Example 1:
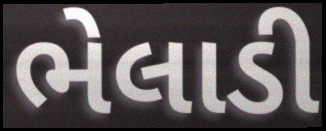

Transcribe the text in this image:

ભેલાડી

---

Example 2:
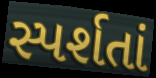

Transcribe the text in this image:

સ્પર્શતાં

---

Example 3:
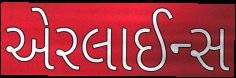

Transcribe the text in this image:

એરલાઈન્સ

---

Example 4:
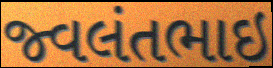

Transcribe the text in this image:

જ્વલંતભાઇ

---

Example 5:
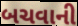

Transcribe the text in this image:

બચવાની